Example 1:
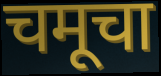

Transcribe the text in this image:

चमूचा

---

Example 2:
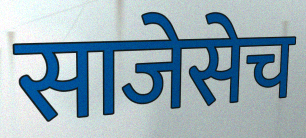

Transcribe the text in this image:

साजेसेच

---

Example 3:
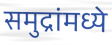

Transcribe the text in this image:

समुद्रांमध्ये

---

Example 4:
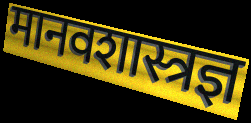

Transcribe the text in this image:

मानवशास्त्रज्ञ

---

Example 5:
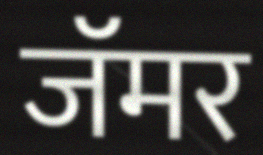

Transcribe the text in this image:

जॅमर